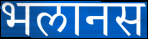
भलानस